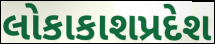
લોકાકાશપ્રદેશ